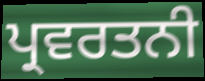
ਪ੍ਰਵਰਤਨੀ